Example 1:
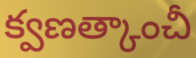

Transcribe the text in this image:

క్వణత్కాంచీ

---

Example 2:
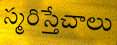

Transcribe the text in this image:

స్మరిస్తేచాలు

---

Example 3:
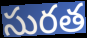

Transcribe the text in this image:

సురత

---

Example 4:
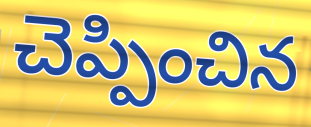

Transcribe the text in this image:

చెప్పించిన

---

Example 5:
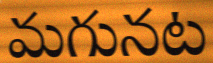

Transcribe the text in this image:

మగునట